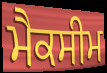
ਮੈਕਸੀਮ